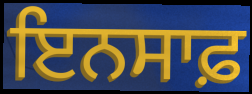
ਇਨਸਾਫ਼